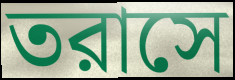
তরাসে